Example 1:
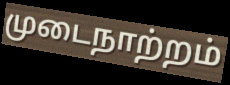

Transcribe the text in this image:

முடைநாற்றம்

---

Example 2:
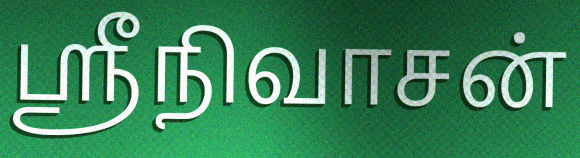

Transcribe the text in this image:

ஸ்ரீநிவாசன்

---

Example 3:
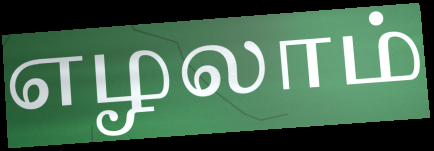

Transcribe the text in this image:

எழலாம்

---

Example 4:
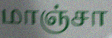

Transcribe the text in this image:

மாஞ்சா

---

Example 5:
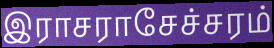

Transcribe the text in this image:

இராசராசேச்சரம்